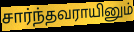
சார்ந்தவராயினும்